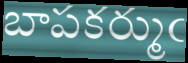
బాపకర్ముఁ